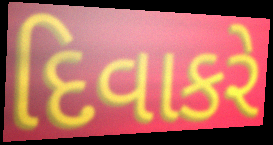
દિવાકરે